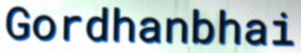
Gordhanbhai